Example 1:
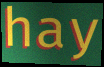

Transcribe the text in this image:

hay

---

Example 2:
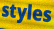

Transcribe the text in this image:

styles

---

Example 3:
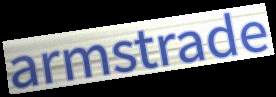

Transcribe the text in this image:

armstrade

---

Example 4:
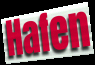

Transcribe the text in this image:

Hafen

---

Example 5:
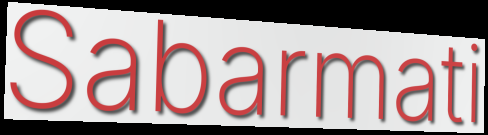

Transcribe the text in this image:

Sabarmati